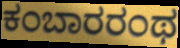
ಕಂಬಾರರಂಥ